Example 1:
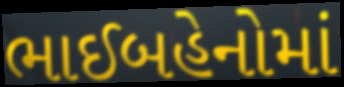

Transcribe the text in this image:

ભાઈબહેનોમાં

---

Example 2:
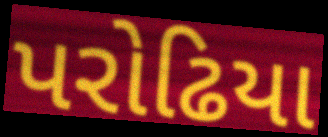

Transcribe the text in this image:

પરોઢિયા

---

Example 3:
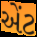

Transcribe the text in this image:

એંટ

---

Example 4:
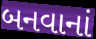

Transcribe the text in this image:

બનવાનાં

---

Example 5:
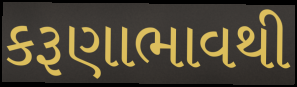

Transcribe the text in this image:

કરૂણાભાવથી